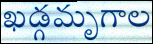
ఖడ్గమృగాల